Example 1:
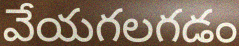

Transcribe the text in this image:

వేయగలగడం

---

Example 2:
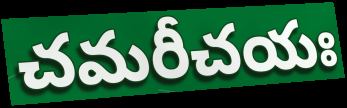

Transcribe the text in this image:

చమరీచయః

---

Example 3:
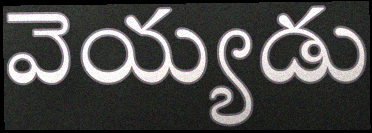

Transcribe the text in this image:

వెయ్యడు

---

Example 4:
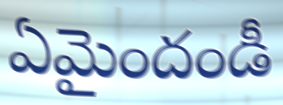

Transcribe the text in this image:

ఏమైందండీ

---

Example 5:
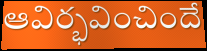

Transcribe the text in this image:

ఆవిర్భవించిందే